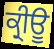
ਕ੍ਰੀਊ